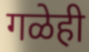
गळेही